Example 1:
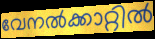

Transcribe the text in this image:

വേനൽക്കാറ്റിൽ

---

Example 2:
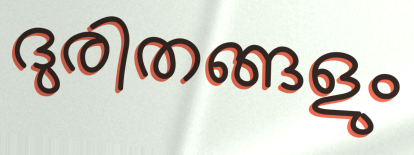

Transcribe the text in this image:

ദുരിതങ്ങളും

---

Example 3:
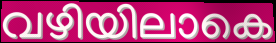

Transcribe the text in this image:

വഴിയിലാകെ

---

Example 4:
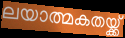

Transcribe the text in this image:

ലയാത്മകതയ്ക്ക്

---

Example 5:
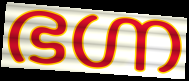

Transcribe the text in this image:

ഭഗ്ന